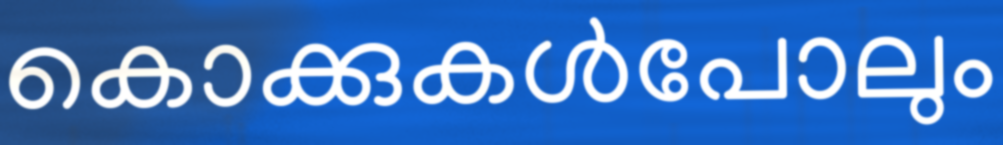
കൊക്കുകൾപോലും